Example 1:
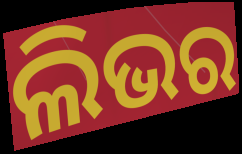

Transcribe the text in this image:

ଲିଭର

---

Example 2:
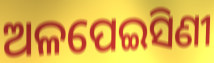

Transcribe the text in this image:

ଅଳପେଇସିଣୀ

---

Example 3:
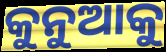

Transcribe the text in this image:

କୁନୁଆକୁ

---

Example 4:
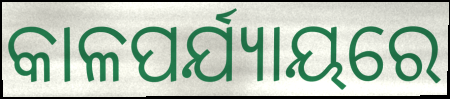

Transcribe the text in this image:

କାଳପର୍ଯ୍ୟାୟରେ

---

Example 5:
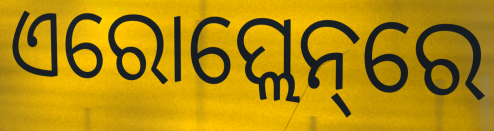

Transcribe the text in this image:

ଏରୋପ୍ଲେନ୍‌ରେ